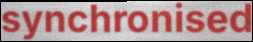
synchronised